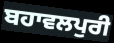
ਬਹਾਵਲਪੁਰੀ